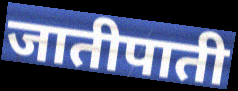
जातीपाती